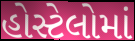
હોસ્ટેલોમાં